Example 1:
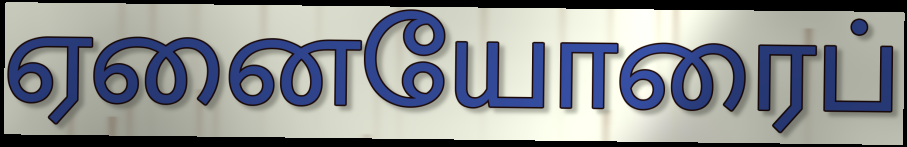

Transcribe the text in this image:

ஏனையோரைப்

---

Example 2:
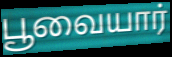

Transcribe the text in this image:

பூவையார்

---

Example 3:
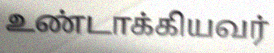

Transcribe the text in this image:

உண்டாக்கியவர்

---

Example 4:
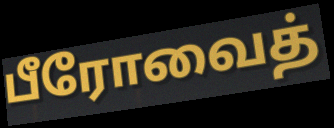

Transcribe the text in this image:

பீரோவைத்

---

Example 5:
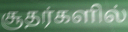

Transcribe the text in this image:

சூதர்களில்